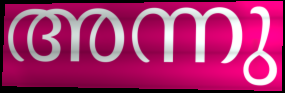
അന്നു